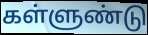
கள்ளுண்டு